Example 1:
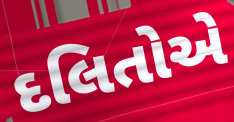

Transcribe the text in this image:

દલિતોએ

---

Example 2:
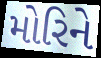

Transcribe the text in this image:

મોરિને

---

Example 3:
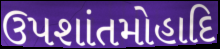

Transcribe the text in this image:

ઉપશાંતમોહાદિ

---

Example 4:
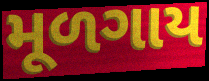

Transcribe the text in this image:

મૂળગાય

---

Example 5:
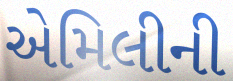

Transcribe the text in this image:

એમિલીની